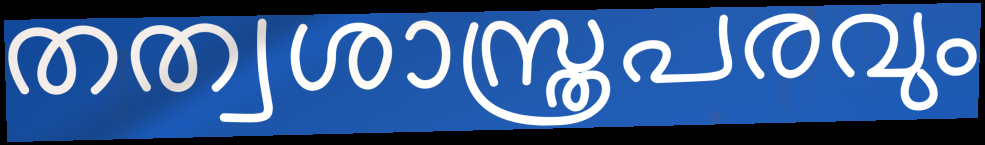
തത്വശാസ്ത്രപരവും